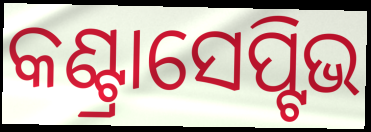
କଣ୍ଟ୍ରାସେପ୍ଟିଭ